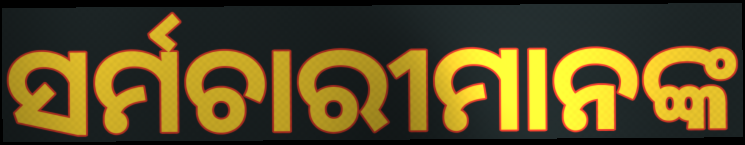
ସର୍ମଚାରୀମାନଙ୍କ